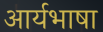
आर्यभाषा